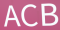
ACB